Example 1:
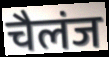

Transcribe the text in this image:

चैलंज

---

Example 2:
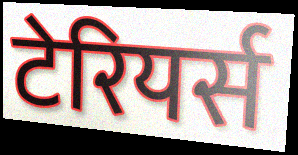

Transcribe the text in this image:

टेरियर्स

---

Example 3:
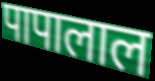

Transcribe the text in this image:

पापालाल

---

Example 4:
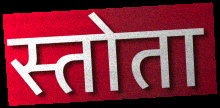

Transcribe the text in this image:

स्तोता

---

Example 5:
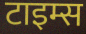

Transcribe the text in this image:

टाइम्‍स